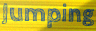
Jumping